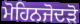
ਮੋਹਿਨਜੋਦੜੋ